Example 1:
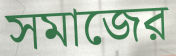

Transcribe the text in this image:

সমাজের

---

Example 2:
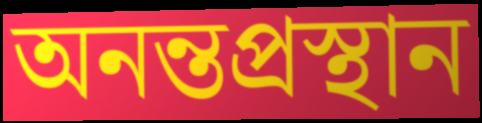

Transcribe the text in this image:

অনন্তপ্রস্থান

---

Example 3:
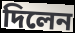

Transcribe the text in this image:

দিলেন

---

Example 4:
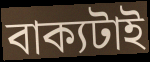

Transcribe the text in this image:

বাক্যটাই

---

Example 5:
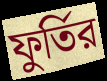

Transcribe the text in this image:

ফুর্তির